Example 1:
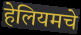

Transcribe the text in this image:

हेलियमचे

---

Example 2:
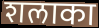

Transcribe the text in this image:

शलाका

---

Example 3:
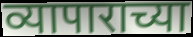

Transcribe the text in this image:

व्यापाराच्या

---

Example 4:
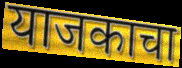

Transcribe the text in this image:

याजकाचा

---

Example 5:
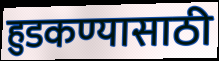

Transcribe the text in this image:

हुडकण्यासाठी